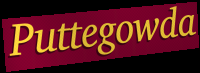
Puttegowda